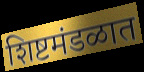
शिष्टमंडळात